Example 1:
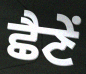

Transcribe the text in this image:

ਛੈਣੇਂ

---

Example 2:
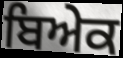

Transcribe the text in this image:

ਬਿਅੇਕ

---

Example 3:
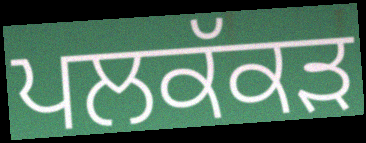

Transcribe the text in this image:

ਪਲਕੱਕੜ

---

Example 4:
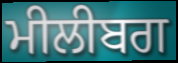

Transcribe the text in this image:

ਮੀਲੀਬਗ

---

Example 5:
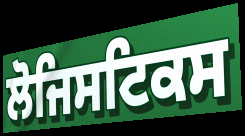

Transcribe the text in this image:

ਲੋਜਿਸਟਿਕਸ